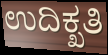
ಉದಿಕ್ಖತಿ